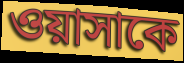
ওয়াসাকে